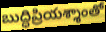
బుద్ధిప్రియశ్శాంతో